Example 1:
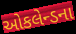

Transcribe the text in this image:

ઓકલેન્ડના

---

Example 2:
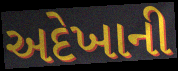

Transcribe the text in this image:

અદેખાની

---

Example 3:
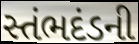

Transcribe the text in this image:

સ્તંભદંડની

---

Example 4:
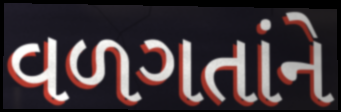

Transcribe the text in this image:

વળગતાંને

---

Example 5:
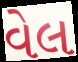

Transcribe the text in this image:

વેલ